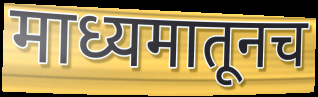
माध्यमातूनच